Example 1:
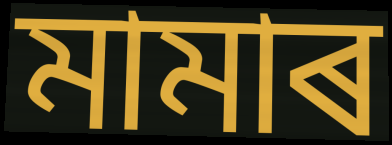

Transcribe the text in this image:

মামাৰ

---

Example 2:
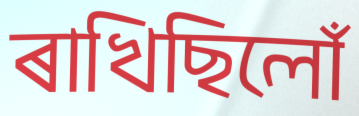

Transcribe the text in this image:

ৰাখিছিলোঁ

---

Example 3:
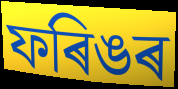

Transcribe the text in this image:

ফৰিঙৰ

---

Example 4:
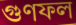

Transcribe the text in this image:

গুণফল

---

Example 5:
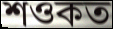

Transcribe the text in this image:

শওকত